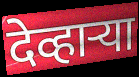
देव्हाऱ्या